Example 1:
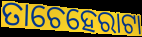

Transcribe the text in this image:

ତାଚେହେରାଟା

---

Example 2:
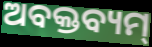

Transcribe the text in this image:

ଅବକ୍ତବ୍ୟମ୍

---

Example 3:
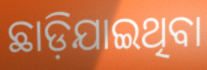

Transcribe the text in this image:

ଛାଡ଼ିଯାଇଥିବା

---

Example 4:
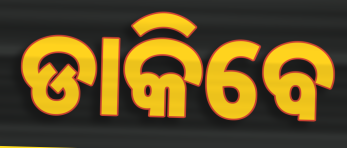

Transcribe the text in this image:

ଡାକିବେ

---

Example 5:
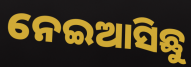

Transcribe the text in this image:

ନେଇଆସିଛୁ